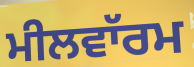
ਮੀਲਵਾੱਰਮ